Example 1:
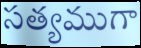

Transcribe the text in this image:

సత్యముగా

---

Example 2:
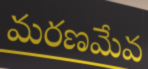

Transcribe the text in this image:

మరణమేవ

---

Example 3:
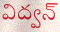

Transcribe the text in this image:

విద్వన్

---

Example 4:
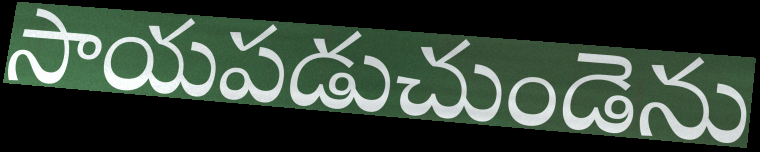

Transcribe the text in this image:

సాయపడుచుండెను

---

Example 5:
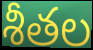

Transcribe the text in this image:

శీతల